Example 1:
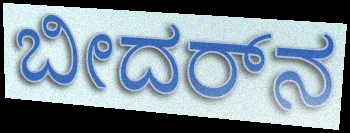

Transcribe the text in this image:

ಬೀದರ್‌ನ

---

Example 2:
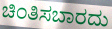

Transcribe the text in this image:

ಚಿಂತಿಸಬಾರದು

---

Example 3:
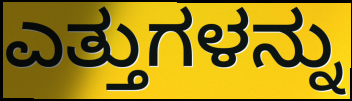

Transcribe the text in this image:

ಎತ್ತುಗಳನ್ನು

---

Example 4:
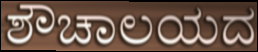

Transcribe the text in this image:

ಶೌಚಾಲಯದ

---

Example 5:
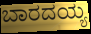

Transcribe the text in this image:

ಬಾರದಯ್ಯ